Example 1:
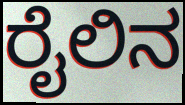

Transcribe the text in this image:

ರೈಲಿನ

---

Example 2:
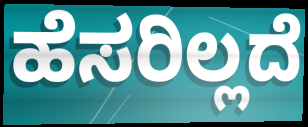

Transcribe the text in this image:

ಹೆಸರಿಲ್ಲದೆ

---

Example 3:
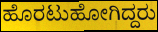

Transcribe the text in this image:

ಹೊರಟುಹೋಗಿದ್ದರು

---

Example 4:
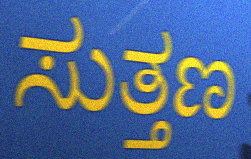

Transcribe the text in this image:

ಸುತ್ತಣ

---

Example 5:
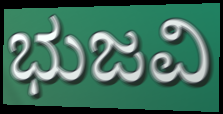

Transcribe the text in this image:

ಭುಜವಿ